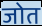
जोत